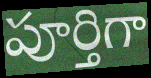
పూర్తిగా